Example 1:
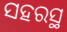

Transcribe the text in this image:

ସହରସ୍ଥ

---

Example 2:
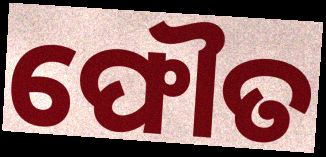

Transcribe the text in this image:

ଫୌତ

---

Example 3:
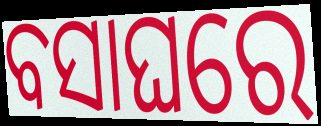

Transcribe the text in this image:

ବସାଘରେ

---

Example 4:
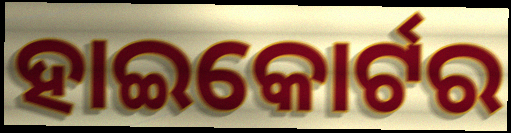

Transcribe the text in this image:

ହାଇକୋର୍ଟର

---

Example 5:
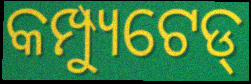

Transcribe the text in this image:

କମ୍ପ୍ୟୁଟେଡ୍